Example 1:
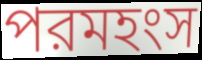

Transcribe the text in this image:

পরমহংস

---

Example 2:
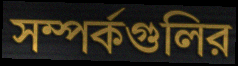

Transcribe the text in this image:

সম্পর্কগুলির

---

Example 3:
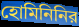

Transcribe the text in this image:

হোমিনিনির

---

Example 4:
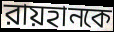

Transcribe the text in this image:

রায়হানকে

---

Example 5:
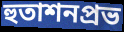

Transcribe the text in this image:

হুতাশনপ্রভ